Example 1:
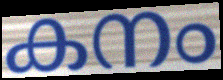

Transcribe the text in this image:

കനം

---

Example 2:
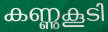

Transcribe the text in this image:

കണ്ണുകൂടി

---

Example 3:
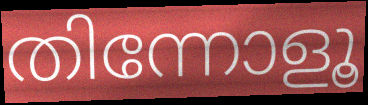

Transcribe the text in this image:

തിന്നോളൂ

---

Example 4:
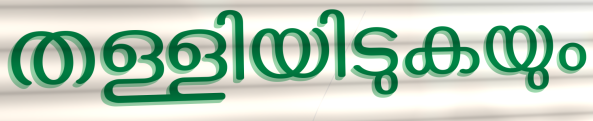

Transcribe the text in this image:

തള്ളിയിടുകയും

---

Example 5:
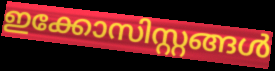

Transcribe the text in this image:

ഇക്കോസിസ്റ്റങ്ങൾ